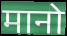
मानो